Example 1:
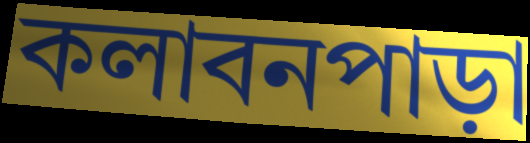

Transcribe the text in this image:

কলাবনপাড়া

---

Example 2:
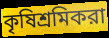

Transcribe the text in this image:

কৃষিশ্রমিকরা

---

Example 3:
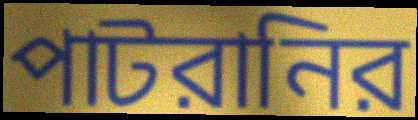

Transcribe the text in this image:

পাটরানির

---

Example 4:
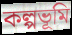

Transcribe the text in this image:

কল্পভূমি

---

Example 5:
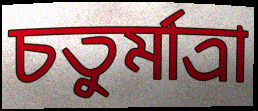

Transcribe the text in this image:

চতুর্মাত্রা